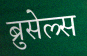
ब्रुसेल्स